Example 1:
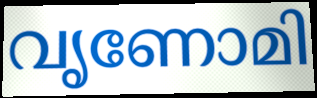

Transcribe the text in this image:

വൃണോമി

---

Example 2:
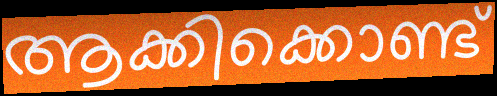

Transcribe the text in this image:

ആക്കിക്കൊണ്ട്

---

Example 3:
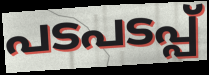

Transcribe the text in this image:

പടപടപ്പ്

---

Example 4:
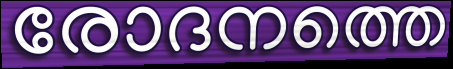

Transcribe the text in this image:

രോദനത്തെ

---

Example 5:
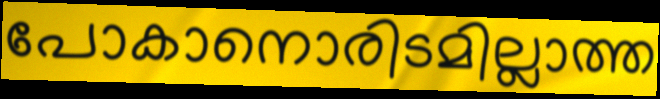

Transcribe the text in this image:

പോകാനൊരിടമില്ലാത്ത